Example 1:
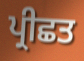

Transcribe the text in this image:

ਪ੍ਰੀਛਤ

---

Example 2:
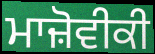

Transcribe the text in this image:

ਮਾਜ਼ੋਵੀਕੀ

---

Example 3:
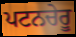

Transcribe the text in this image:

ਪਟਨਚੇਰੂ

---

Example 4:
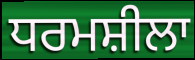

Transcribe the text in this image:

ਧਰਮਸ਼ੀਲਾ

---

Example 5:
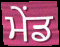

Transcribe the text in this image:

ਮੇਂਡ